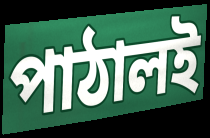
পাঠালই